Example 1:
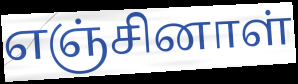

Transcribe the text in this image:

எஞ்சினாள்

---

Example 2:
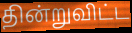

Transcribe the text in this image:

தின்றுவிட்ட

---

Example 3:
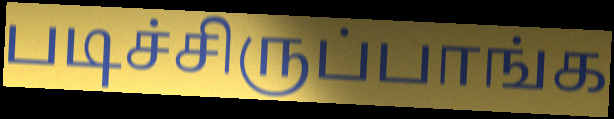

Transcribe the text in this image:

படிச்சிருப்பாங்க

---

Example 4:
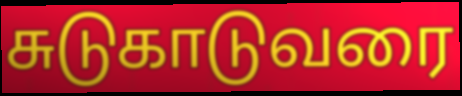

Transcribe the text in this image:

சுடுகாடுவரை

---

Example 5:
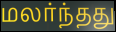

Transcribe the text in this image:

மலர்ந்தது